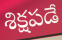
శిక్షపడే